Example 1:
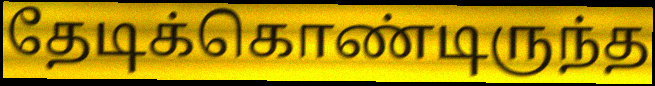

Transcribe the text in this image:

தேடிக்கொண்டிருந்த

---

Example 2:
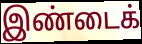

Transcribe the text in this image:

இண்டைக்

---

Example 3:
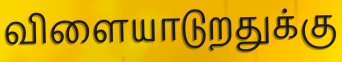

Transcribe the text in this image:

விளையாடுறதுக்கு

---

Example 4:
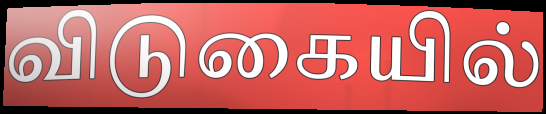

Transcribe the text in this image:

விடுகையில்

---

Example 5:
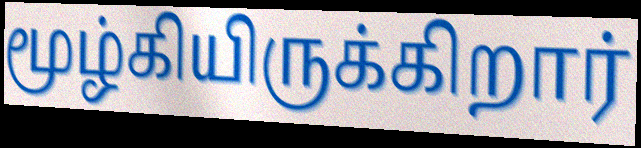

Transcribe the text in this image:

மூழ்கியிருக்கிறார்